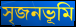
সৃজনভূমি